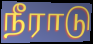
நீராடு